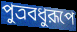
পুত্রবধুরূপে